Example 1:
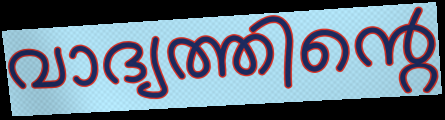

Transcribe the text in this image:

വാദ്യത്തിന്റെ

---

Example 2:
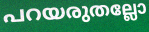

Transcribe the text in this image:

പറയരുതല്ലോ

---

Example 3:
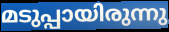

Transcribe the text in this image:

മടുപ്പായിരുന്നു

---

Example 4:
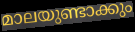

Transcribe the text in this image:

മാലയുണ്ടാക്കും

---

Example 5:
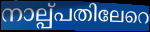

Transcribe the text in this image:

നാല്പ്പതിലേറെ